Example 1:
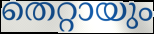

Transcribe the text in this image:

തെറ്റായും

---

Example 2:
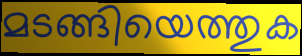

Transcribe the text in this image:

മടങ്ങിയെത്തുക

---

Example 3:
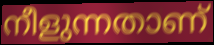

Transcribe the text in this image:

നീളുന്നതാണ്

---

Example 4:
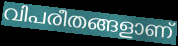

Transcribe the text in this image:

വിപരീതങ്ങളാണ്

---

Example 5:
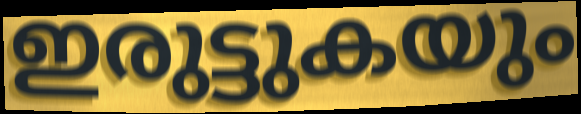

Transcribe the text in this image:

ഇരുട്ടുകയും